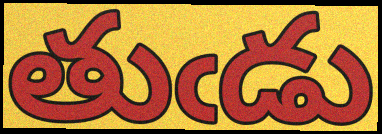
తుఁడు